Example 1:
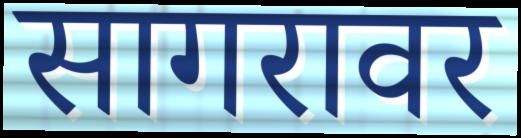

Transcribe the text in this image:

सागरावर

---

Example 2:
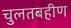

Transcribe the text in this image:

चुलतबहीण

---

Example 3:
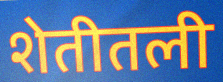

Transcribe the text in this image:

शेतीतली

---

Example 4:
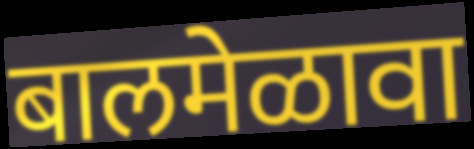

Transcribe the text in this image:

बालमेळावा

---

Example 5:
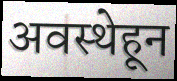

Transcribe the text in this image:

अवस्थेहून